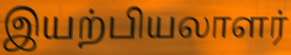
இயற்பியலாளர்